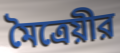
মৈত্রেয়ীর